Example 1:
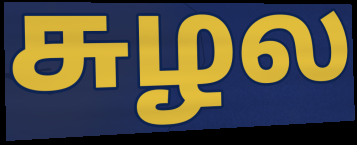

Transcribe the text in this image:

சுழல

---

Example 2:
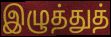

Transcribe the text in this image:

இழுத்துத்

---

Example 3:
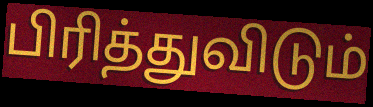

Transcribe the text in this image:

பிரித்துவிடும்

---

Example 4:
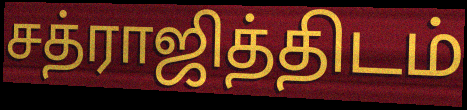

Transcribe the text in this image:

சத்ராஜித்திடம்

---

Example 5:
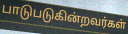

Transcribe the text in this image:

பாடுபடுகின்றவர்கள்